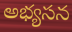
అభ్యసన